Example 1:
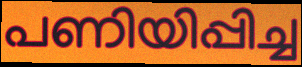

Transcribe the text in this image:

പണിയിപ്പിച്ച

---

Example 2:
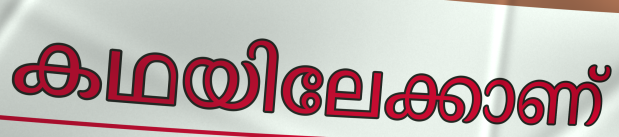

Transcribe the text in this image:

കഥയിലേക്കാണ്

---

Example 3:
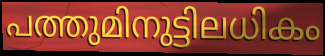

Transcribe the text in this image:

പത്തുമിനുട്ടിലധികം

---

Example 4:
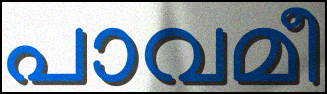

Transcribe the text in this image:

പാവമീ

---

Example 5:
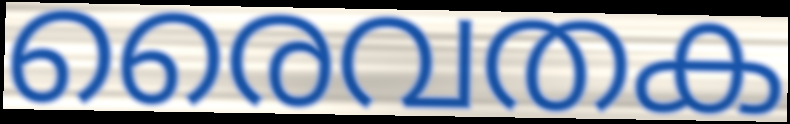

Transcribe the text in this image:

രൈവതക